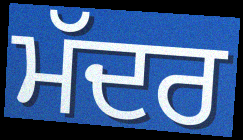
ਮੱਦਰ